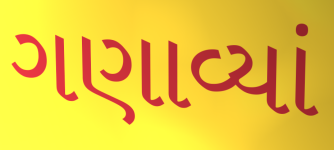
ગણાવ્યાં